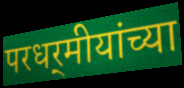
परधर्मीयांच्या